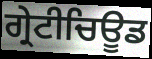
ਗ੍ਰੇਟੀਚਿਊਡ